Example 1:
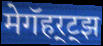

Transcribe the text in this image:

मेगॅहर्ट्‌झ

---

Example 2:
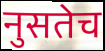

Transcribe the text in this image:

नुसतेच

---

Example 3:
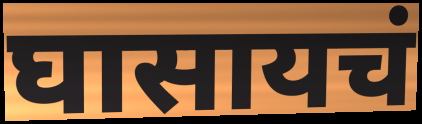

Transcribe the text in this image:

घासायचं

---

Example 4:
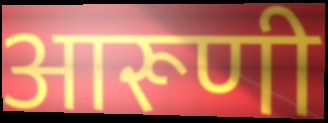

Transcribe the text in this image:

आरूणी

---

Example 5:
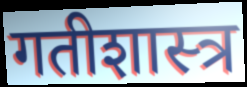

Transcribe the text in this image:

गतीशास्त्र